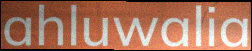
ahluwalia